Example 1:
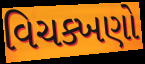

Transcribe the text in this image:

વિચક્ખણો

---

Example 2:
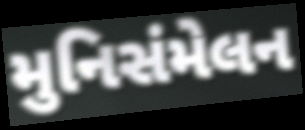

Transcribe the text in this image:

મુનિસંમેલન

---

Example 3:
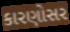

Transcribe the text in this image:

કારણોસર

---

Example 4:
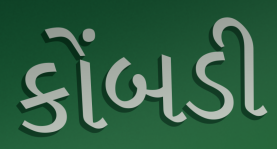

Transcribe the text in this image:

કોંબડી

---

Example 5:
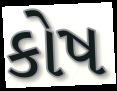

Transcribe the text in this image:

કોષ